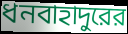
ধনবাহাদুরের